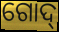
ଗୋଦ୍